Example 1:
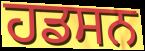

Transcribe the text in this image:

ਹਡਸਨ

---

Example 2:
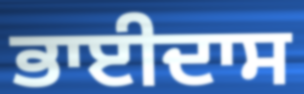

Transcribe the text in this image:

ਭਾਈਦਾਸ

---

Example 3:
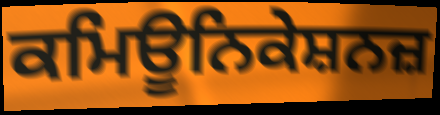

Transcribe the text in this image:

ਕਮਿਊਨਿਕੇਸ਼ਨਜ਼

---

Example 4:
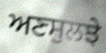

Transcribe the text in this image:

ਅਣਸੁਲਝੇ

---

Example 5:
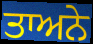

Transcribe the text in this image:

ਤਾਅਨੇ